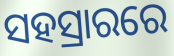
ସହସ୍ରାରରେ